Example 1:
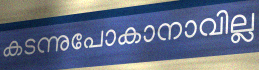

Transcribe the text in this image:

കടന്നുപോകാനാവില്ല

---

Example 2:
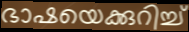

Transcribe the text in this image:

ഭാഷയെക്കുറിച്ച്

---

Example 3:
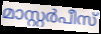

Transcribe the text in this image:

മാസ്റ്റർപീസ്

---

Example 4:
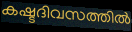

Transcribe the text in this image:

കഷ്ടദിവസത്തിൽ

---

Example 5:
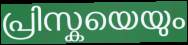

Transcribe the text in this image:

പ്രിസ്കയെയും